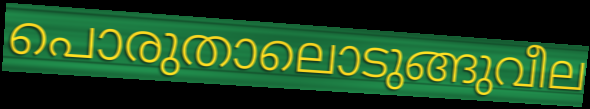
പൊരുതാലൊടുങ്ങുവീല